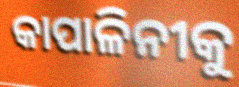
କାପାଳିନୀକୁ